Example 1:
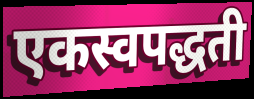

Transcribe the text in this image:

एकस्वपद्धती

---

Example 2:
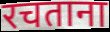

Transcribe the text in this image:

रचताना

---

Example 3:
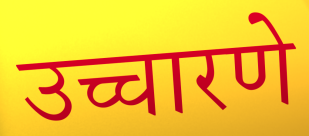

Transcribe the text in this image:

उच्चारणे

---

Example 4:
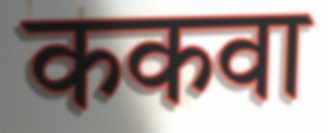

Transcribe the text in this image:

ककवा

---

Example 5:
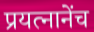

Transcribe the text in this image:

प्रयत्नानेंच